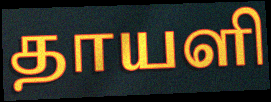
தாயளி